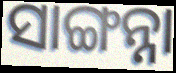
ସାଙ୍ଗନ୍ନା